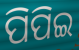
ପିପିଇ